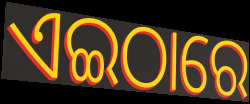
ଏଇଠାରେ